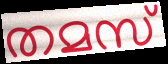
തമസ്